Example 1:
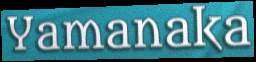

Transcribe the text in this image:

Yamanaka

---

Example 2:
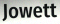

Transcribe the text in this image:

Jowett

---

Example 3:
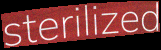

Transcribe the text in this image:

sterilized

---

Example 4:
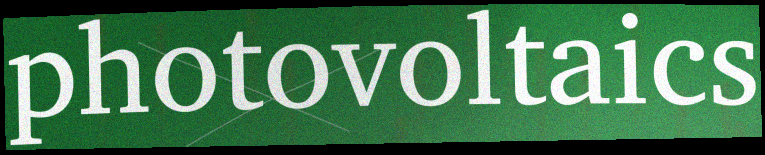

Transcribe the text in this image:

photovoltaics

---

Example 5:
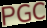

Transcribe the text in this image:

PGC